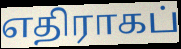
எதிராகப்